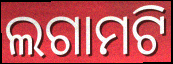
ଲଗାମଟି